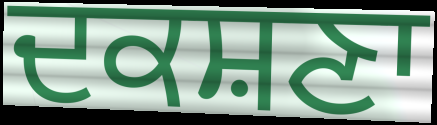
ਦਕਸ਼ਣਾ